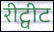
रीट्वीट